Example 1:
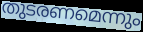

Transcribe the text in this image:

തുടരണമെന്നും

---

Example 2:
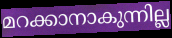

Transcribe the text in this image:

മറക്കാനാകുന്നില്ല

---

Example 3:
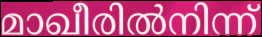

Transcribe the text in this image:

മാഖീരിൽനിന്ന്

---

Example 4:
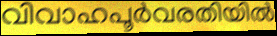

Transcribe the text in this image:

വിവാഹപൂർവരതിയിൽ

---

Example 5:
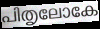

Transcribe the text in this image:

പിതൃലോകേ